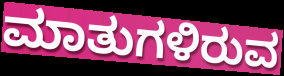
ಮಾತುಗಳಿರುವ